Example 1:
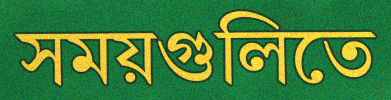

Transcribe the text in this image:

সময়গুলিতে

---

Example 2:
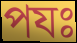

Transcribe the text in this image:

পযঃ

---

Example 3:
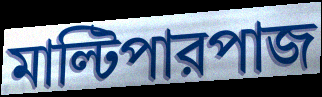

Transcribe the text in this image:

মাল্টিপারপাজ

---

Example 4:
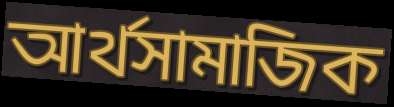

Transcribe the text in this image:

আর্থসামাজিক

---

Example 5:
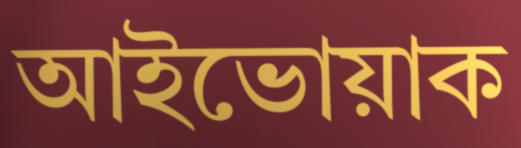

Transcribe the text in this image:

আইভোয়াক